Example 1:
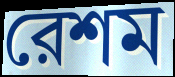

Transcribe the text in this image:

রেশম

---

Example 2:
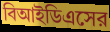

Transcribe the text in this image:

বিআইডিএসের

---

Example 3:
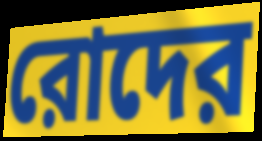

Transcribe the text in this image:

রোদের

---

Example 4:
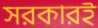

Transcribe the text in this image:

সরকারই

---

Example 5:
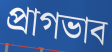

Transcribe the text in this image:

প্রাগভাব